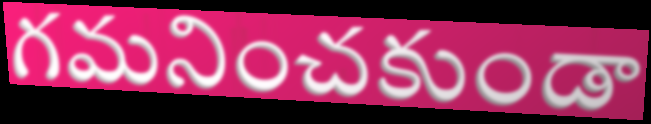
గమనించకుండా